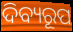
ଦିବ୍ୟରୂପ